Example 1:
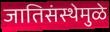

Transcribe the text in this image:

जातिसंस्थेमुळे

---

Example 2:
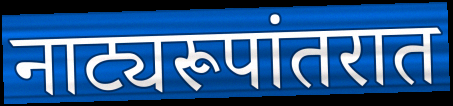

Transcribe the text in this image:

नाट्यरूपांतरात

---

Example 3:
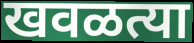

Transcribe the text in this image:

खवळत्या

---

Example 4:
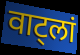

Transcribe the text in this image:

वाट्लां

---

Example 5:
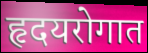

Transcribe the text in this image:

हृदयरोगात